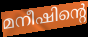
മനീഷിന്റെ